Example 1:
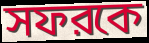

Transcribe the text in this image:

সফরকে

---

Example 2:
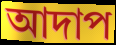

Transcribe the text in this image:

আদাপ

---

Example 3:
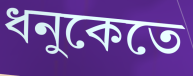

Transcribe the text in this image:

ধনুকেতে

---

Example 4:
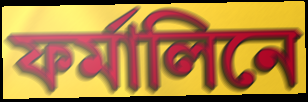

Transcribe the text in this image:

ফর্মালিনে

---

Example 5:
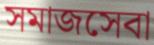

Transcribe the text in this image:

সমাজসেবা